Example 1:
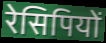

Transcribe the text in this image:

रेसिपियों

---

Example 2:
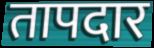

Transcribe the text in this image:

तापदार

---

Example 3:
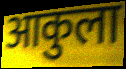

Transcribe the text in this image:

आकुला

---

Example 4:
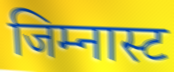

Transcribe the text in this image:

जिम्नास्ट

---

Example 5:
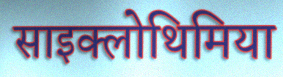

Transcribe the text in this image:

साइक्लोथिमिया